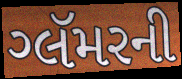
ગ્લૅમરની